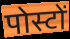
पोस्टों